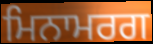
ਮਿਨਾਮਰਗ